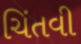
ચિંતવી